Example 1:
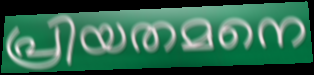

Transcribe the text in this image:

പ്രിയതമനെ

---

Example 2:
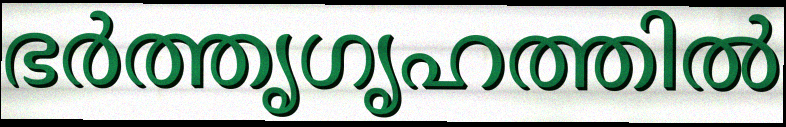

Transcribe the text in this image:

ഭർത്തൃഗൃഹത്തിൽ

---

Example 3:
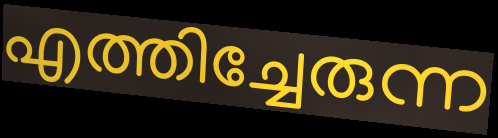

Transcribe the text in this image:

എത്തിച്ചേരുന്ന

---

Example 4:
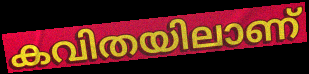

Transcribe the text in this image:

കവിതയിലാണ്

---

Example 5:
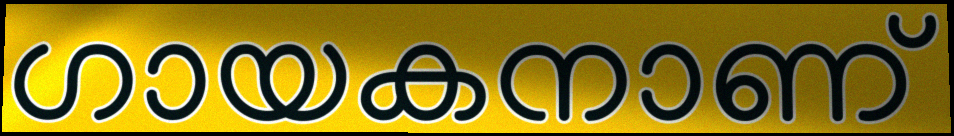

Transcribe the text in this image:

ഗായകനാണ്